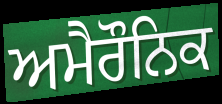
ਅਮੈਰੌਨਿਕ